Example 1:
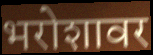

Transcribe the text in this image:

भरोशावर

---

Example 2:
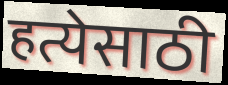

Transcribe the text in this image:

हत्येसाठी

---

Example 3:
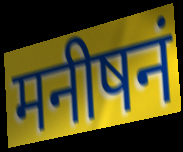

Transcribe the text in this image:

मनीषनं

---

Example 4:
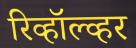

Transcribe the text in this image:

रिव्हॉल्व्हर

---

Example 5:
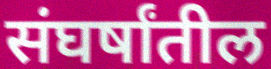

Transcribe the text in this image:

संघर्षांतील